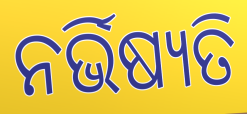
ନର୍ଭିଷ୍ୟତି